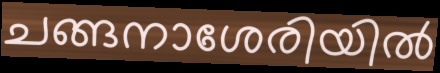
ചങ്ങനാശേരിയിൽ